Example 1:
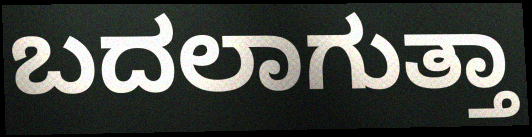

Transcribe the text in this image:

ಬದಲಾಗುತ್ತಾ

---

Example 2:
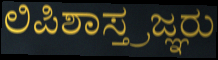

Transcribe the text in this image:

ಲಿಪಿಶಾಸ್ತ್ರಜ್ಞರು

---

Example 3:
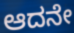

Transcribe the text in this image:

ಆದನೇ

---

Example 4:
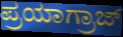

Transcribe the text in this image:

ಪ್ರಯಾಗ್ರಾಜ್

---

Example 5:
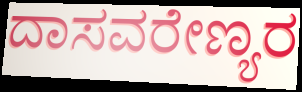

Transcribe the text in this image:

ದಾಸವರೇಣ್ಯರ